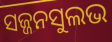
ସଜ୍ଜନସୁଲଭ